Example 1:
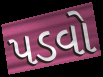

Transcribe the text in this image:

પડવો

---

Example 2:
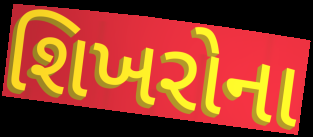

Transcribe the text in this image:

શિખરોના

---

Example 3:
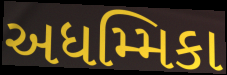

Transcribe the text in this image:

અધમ્મિકા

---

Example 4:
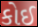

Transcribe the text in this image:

કોઈ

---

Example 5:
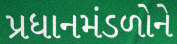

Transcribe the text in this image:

પ્રધાનમંડળોને